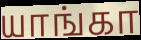
யாங்கா